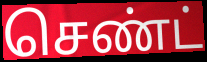
செண்ட்